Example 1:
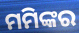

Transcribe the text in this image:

ମମିଙ୍କର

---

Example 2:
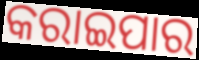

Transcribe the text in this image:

କରାଇପାର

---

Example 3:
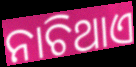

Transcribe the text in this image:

ନାଚିଥାଏ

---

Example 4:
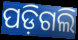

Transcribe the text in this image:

ପଡ଼ିଗଲି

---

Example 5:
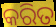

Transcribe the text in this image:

କରିତ